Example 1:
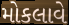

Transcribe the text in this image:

મોકલાવે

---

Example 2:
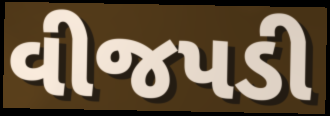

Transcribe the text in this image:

વીજપડી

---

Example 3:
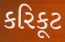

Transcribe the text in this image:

કરિકૂટ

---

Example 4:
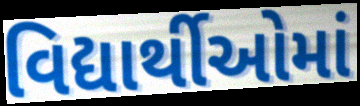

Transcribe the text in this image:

વિદ્યાર્થીઓમાં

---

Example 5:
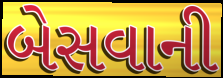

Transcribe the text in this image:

બેસવાની